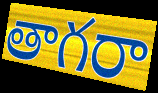
తాగరా